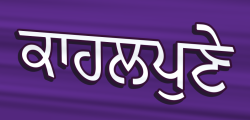
ਕਾਹਲਪੁਣੇ